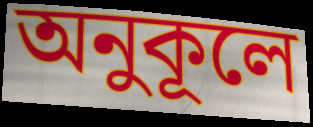
অনুকূলে